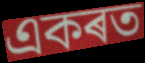
একৰত